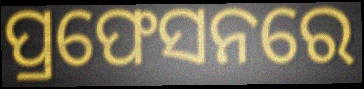
ପ୍ରଫେସନରେ